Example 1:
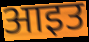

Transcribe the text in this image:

आइउ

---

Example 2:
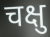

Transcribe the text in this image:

चक्षु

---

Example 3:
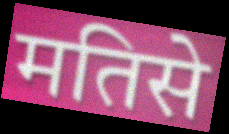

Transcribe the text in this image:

मतिसे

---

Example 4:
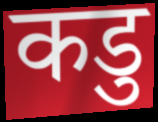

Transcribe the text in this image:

कडु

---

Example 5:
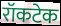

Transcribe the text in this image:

रॉकटेक